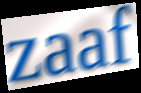
zaaf